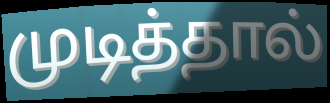
முடித்தால்